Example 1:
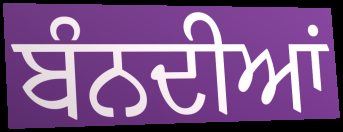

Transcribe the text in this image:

ਬੰਨਦੀਆਂ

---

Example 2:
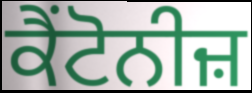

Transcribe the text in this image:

ਕੈਂਟੋਨੀਜ਼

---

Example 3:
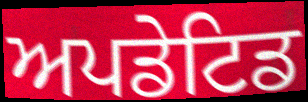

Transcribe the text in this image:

ਅਪਡੇਟਿਡ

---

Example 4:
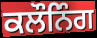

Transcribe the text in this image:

ਕਲੌਨਿੰਗ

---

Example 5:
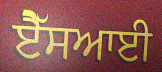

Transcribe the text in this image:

ਏੈੱਸਆਈ